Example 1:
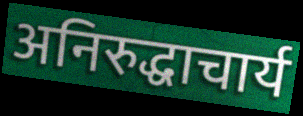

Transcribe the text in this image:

अनिरुद्धाचार्य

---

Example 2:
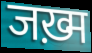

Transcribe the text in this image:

जख़्म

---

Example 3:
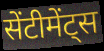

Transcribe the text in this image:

सेंटीमेंट्स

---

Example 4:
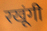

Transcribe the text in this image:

रखूंगी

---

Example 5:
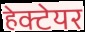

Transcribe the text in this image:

हेक्टेयर